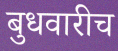
बुधवारीच